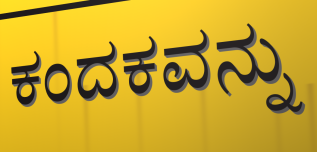
ಕಂದಕವನ್ನು